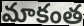
మాకంత